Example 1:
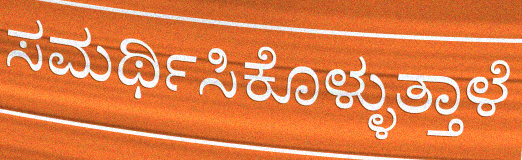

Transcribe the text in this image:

ಸಮರ್ಥಿಸಿಕೊಳ್ಳುತ್ತಾಳೆ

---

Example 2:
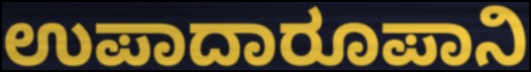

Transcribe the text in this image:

ಉಪಾದಾರೂಪಾನಿ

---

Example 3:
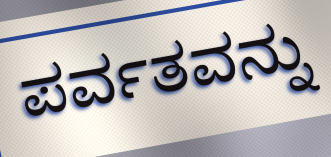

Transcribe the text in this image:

ಪರ್ವತವನ್ನು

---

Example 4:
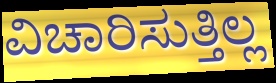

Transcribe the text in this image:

ವಿಚಾರಿಸುತ್ತಿಲ್ಲ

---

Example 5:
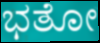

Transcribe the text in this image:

ಭತೋ